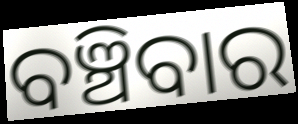
ବଞ୍ଚିବାର